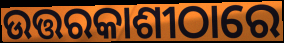
ଉତ୍ତରକାଶୀଠାରେ